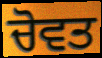
ਚੋਵਤ